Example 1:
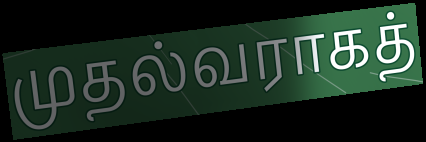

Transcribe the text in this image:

முதல்வராகத்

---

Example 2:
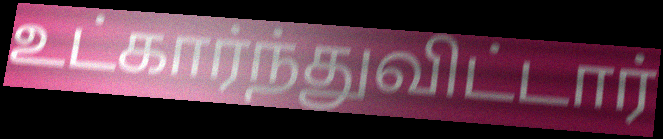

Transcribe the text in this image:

உட்கார்ந்துவிட்டார்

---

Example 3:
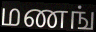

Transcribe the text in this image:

மணங்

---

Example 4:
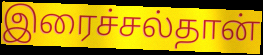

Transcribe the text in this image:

இரைச்சல்தான்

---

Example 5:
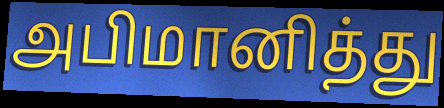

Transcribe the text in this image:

அபிமானித்து